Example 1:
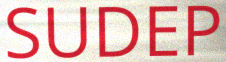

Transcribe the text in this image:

SUDEP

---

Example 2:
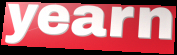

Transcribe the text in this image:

yearn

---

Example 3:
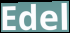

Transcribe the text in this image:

Edel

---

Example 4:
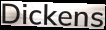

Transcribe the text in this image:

Dickens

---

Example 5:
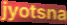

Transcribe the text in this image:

jyotsna